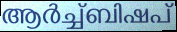
ആർച്ച്ബിഷപ്